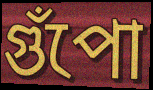
গুঁপো